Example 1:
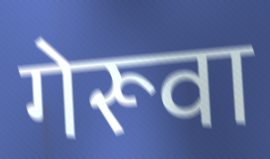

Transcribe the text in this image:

गेरूवा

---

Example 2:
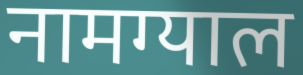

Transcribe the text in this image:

नामग्याल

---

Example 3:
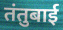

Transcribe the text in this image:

तंतुबाई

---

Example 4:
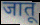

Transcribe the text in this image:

जातू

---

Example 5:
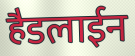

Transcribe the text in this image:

हैडलाईन